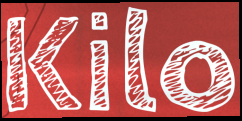
Kilo